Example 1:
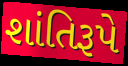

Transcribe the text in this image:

શાંતિરૂપે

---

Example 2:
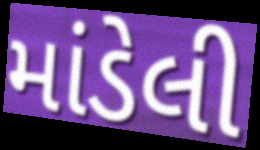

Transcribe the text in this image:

માંડેલી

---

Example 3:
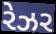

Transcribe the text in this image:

રેઝર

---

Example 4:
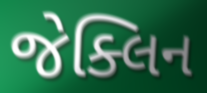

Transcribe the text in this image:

જેક્લિન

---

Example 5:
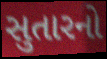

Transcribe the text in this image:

સુતારનો